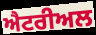
ਐਟਰੀਅਲ